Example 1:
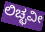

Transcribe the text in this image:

ಲಿಚ್ಛವೀ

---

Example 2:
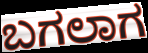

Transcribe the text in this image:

ಬಗಲಾಗ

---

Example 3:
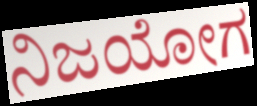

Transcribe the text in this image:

ನಿಜಯೋಗ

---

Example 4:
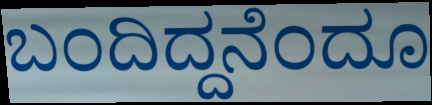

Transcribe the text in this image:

ಬಂದಿದ್ದನೆಂದೂ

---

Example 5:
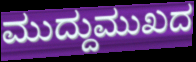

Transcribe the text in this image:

ಮುದ್ದುಮುಖದ